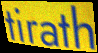
tirath